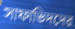
সাফাভিদদের